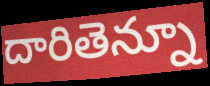
దారితెన్నూ